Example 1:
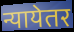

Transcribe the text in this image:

न्यायेतर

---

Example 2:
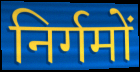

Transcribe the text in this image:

निर्गमों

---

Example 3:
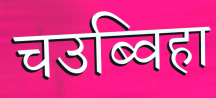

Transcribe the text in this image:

चउब्विहा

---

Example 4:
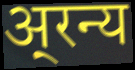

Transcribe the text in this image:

अ्रन्य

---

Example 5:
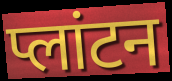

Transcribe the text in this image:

प्लांटन